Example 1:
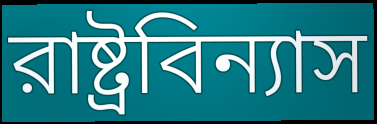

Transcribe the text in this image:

রাষ্ট্রবিন্যাস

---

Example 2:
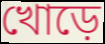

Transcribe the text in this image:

খোড়ে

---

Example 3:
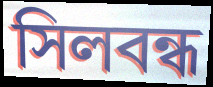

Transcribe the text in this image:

সিলবন্ধ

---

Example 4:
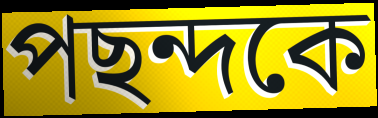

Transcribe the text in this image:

পছন্দকে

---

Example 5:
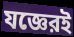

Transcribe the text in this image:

যজ্ঞেরই